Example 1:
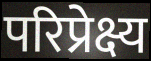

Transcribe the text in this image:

परिप्रेक्ष्य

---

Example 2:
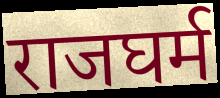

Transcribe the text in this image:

राजघर्म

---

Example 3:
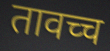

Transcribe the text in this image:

तावच्च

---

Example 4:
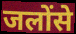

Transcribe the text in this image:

जलोंसे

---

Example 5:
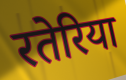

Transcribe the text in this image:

रतेरिया